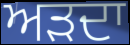
ਅੜਦਾ